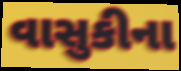
વાસુકીના